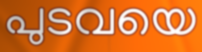
പുടവയെ